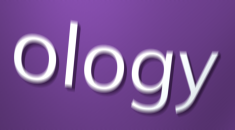
ology